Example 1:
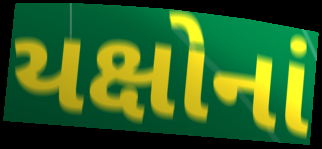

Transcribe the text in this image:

યક્ષોનાં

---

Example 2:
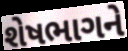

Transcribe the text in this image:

શેષભાગને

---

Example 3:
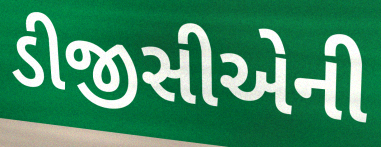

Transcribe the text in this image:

ડીજીસીએની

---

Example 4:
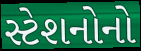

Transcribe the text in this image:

સ્ટેશનોનો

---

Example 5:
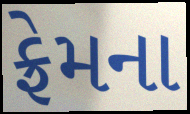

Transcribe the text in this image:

ફ્રેમના